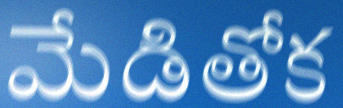
మేడితోక